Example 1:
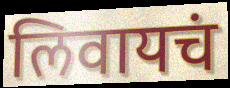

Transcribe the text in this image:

लिवायचं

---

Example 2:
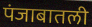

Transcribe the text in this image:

पंजाबातली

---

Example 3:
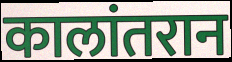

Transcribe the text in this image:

कालांतरान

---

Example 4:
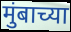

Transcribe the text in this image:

मुंबाच्या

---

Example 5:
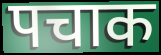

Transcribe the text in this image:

पचाक